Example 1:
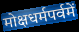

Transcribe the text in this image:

मोक्षधर्मपर्वमें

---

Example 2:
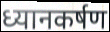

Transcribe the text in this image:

ध्यानकर्षण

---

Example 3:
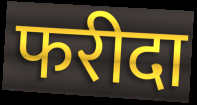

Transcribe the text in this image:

फरीदा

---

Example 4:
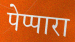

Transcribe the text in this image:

पेप्पारा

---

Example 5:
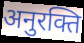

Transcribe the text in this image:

अनुरक्ति